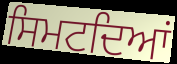
ਸਿਮਟਦਿਆਂ